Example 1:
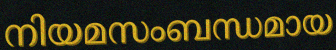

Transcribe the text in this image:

നിയമസംബന്ധമായ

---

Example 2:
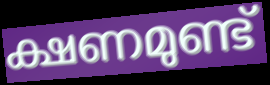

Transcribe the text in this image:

ക്ഷണമുണ്ട്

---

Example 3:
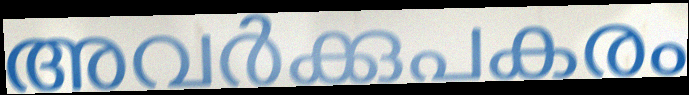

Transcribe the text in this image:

അവർക്കുപകരം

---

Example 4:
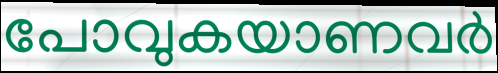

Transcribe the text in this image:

പോവുകയാണവർ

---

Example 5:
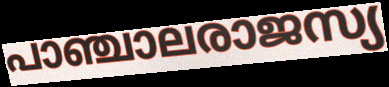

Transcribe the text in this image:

പാഞ്ചാലരാജസ്യ